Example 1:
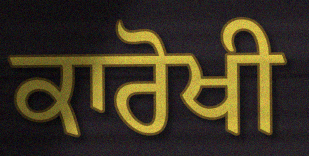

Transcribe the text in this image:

ਕਾਰੋਖੀ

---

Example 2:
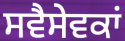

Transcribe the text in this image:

ਸਵੈਸੇਵਕਾਂ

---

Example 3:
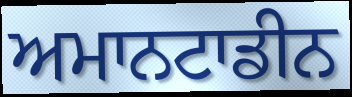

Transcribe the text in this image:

ਅਮਾਨਟਾਡੀਨ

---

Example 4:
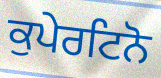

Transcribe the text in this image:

ਕੁਪੇਰਟਿਨੋ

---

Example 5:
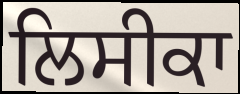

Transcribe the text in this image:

ਲਿਸੀਕਾ